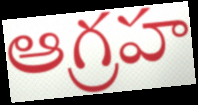
ఆగ్రహ